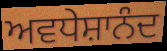
ਅਵਧੇਸ਼ਾਨੰਦ